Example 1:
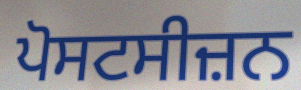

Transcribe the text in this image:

ਪੋਸਟਸੀਜ਼ਨ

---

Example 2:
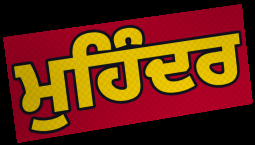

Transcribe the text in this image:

ਮੁਹਿੰਦਰ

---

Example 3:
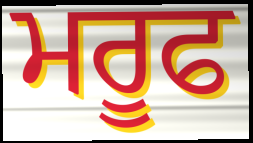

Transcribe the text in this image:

ਮਰੂਫ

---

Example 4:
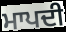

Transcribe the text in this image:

ਮਾਪਦੀ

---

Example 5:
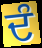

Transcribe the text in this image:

ਦੰ